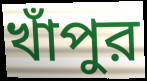
খাঁপুর